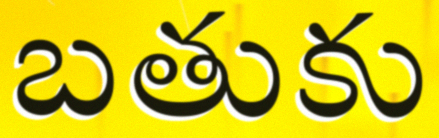
బతుకు